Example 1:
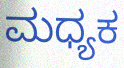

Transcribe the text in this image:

ಮಧ್ಯಕ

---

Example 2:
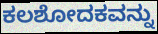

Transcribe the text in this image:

ಕಲಶೋದಕವನ್ನು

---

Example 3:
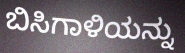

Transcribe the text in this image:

ಬಿಸಿಗಾಳಿಯನ್ನು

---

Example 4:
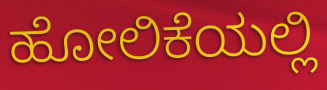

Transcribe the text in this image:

ಹೋಲಿಕೆಯಲ್ಲಿ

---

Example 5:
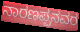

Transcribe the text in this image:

ನಾರಣಪ್ಪನವರ